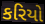
કરિયો